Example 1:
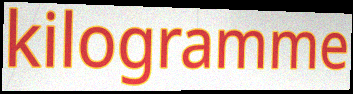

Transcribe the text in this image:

kilogramme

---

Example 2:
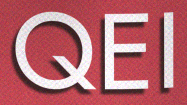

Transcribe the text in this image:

QEI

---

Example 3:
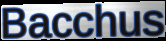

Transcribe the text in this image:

Bacchus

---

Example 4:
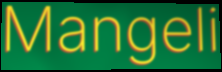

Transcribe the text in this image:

Mangeli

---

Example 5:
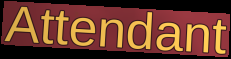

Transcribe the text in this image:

Attendant